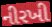
નીરખી